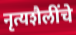
नृत्यशैलींचे